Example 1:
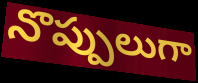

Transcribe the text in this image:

నొప్పులుగా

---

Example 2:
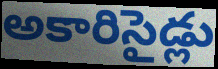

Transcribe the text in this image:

అకారిసైడ్లు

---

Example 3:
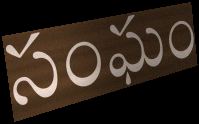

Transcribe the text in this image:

సంఘం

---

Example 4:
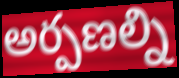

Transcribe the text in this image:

అర్పణల్ని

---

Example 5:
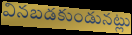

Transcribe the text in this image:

వినబడకుండునట్లు